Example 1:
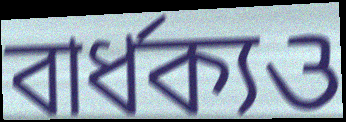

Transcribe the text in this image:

বার্ধক্যও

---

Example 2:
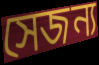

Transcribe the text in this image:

সেজন্য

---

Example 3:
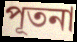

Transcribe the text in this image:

পূতনা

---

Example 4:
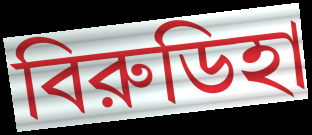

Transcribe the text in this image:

বিরুডিহা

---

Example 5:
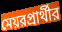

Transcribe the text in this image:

মেয়রপ্রার্থীর